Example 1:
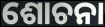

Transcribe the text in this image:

ଶୋଚନା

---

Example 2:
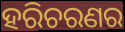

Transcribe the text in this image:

ହରିଚରଣର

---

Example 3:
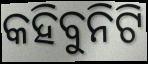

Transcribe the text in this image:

କହିବୁନିଟି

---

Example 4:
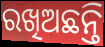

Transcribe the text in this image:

ରଖିଅଛନ୍ତି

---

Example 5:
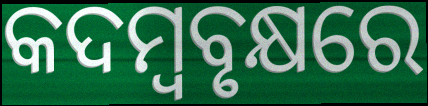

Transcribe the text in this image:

କଦମ୍ୱବୃକ୍ଷରେ